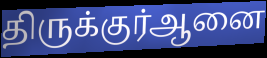
திருக்குர்ஆனை